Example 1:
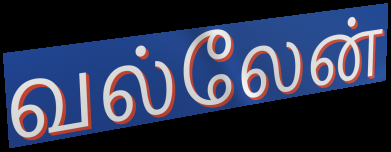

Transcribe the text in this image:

வல்லேன்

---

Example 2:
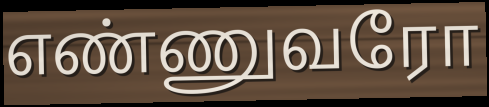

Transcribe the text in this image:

எண்ணுவரோ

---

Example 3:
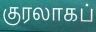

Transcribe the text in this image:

குரலாகப்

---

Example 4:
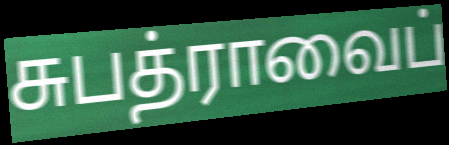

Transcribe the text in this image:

சுபத்ராவைப்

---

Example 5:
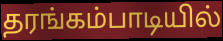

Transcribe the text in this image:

தரங்கம்பாடியில்